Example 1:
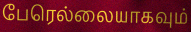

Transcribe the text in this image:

பேரெல்லையாகவும்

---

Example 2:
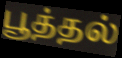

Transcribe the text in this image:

பூத்தல்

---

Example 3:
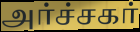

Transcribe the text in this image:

அர்ச்சகர்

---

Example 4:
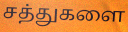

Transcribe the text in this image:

சத்துகளை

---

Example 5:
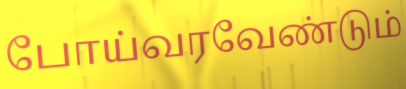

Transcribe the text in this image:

போய்வரவேண்டும்